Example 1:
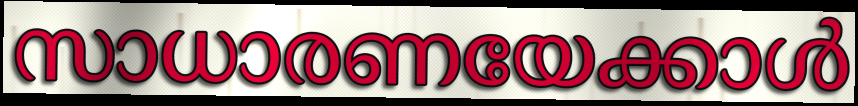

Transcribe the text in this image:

സാധാരണയേക്കാൾ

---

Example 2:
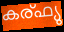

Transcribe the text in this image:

കര്ഫ്യു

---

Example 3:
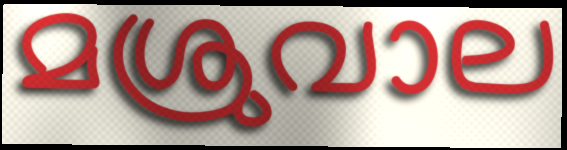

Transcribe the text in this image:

മശ്രുവാല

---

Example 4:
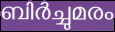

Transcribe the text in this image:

ബിർച്ചുമരം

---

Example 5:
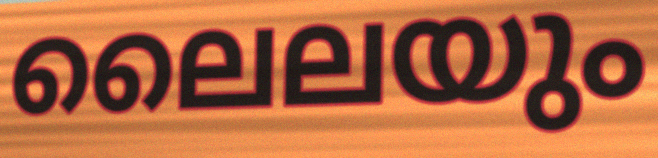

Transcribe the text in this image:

ലൈലയും